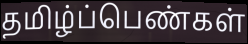
தமிழ்ப்பெண்கள்